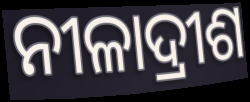
ନୀଳାଦ୍ରୀଶ